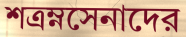
শত্রম্নসেনাদের